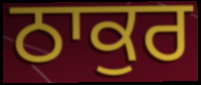
ਠਾਕੁਰ